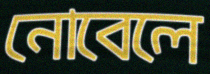
নোবেলে